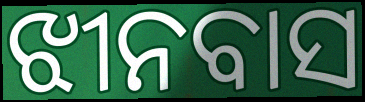
ଝୀନବାସ